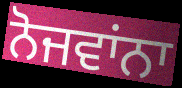
ਨੋਜਵਾਂਨਾ